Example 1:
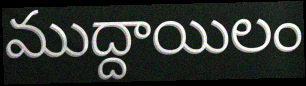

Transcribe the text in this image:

ముద్దాయిలం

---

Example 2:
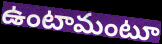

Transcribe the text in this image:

ఉంటామంటూ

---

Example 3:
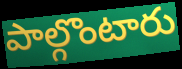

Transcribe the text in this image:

పాల్గొంటారు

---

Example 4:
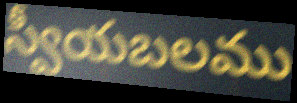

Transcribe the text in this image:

స్వీయబలము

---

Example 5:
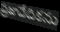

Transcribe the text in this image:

ప్రజావేదికను